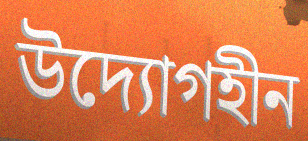
উদ্যোগহীন